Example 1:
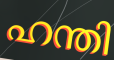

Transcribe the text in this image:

ഹന്തി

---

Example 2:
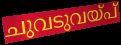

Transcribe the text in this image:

ചുവടുവയ്പ്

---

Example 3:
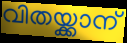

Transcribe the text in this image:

വിതയ്ക്കാന്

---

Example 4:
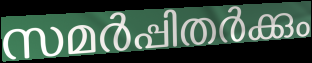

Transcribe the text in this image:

സമർപ്പിതർക്കും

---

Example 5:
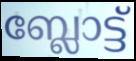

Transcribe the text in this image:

ബ്ലോട്ട്